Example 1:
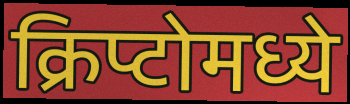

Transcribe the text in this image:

क्रिप्टोमध्ये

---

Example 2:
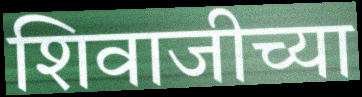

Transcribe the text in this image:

शिवाजीच्या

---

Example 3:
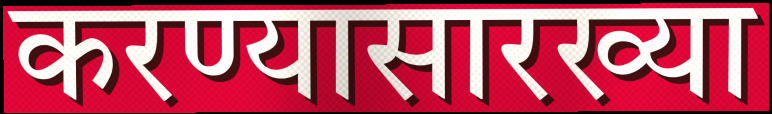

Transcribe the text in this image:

करण्यासारख्या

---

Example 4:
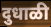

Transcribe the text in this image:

दुधाळी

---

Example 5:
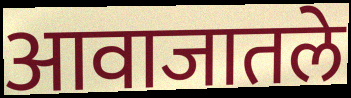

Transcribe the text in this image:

आवाजातले